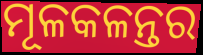
ମୂଳକଳନ୍ତର